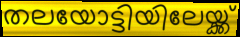
തലയോട്ടിയിലേയ്ക്ക്